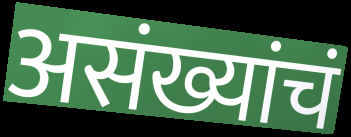
असंख्यांचं